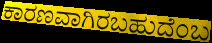
ಕಾರಣವಾಗಿರಬಹುದೆಂಬ